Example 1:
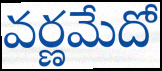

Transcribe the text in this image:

వర్ణమేదో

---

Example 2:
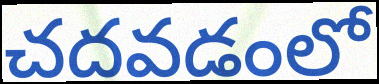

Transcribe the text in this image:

చదవడంలో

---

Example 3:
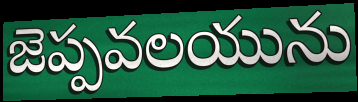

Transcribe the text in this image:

జెప్పవలయును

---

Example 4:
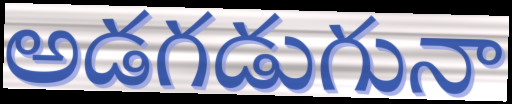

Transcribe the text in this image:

అడగడుగునా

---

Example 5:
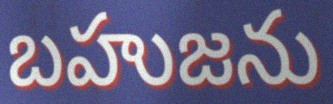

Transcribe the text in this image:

బహుజను